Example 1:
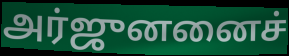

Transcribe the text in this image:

அர்ஜுனனைச்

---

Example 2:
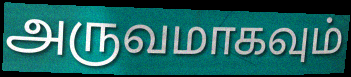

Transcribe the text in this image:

அருவமாகவும்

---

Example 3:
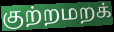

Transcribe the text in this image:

குற்றமறக்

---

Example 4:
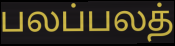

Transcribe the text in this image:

பலப்பலத்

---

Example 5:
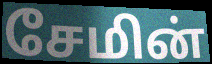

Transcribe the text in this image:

சேமின்